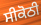
ਸੀਕੋਠੀ